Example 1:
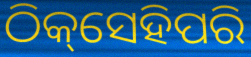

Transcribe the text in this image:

ଠିକ୍‌ସେହିପରି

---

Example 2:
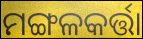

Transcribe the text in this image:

ମଙ୍ଗଳକର୍ତ୍ତା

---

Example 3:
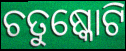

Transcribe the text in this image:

ଚତୁଷ୍କୋଟି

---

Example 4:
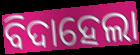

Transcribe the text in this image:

ବିଦାହେଲା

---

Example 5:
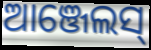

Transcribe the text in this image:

ଆଞ୍ଜେଲସ୍